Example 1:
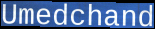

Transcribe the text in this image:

Umedchand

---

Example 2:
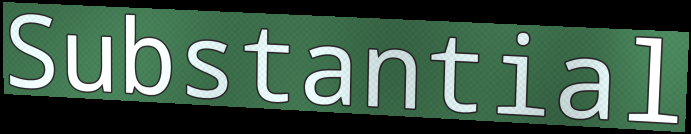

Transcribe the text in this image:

Substantial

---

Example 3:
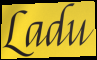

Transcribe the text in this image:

Ladu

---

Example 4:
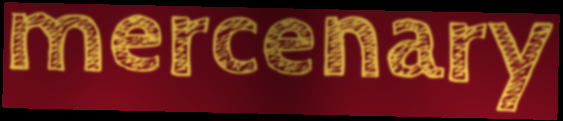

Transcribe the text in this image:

mercenary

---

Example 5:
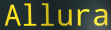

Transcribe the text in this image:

Allura